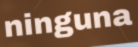
ninguna